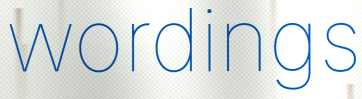
wordings